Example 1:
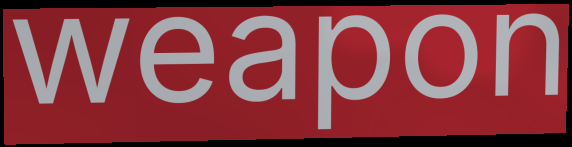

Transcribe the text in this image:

weapon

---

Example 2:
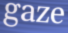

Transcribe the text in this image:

gaze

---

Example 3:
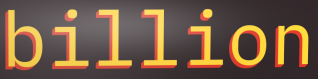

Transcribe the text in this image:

billion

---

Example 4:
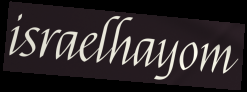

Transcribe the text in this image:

israelhayom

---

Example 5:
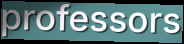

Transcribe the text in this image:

professors